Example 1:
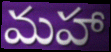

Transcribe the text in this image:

మహా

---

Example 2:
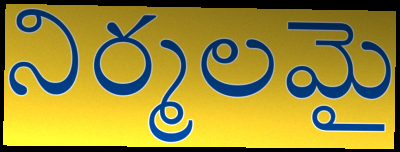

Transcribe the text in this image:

నిర్మలమై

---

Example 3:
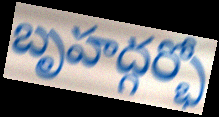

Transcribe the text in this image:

బృహద్గర్భో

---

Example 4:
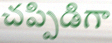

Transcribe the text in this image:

చప్పిడిగా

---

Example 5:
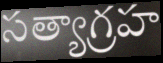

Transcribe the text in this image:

సత్యాగ్రహ